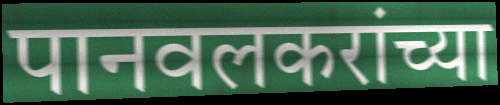
पानवलकरांच्या